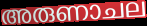
അരുണാചല